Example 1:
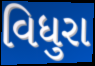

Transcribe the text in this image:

વિધુરા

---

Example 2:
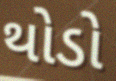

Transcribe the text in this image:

થોડો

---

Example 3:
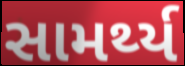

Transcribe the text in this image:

સામર્થ્ય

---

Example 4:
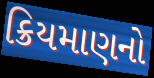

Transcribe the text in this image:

ક્રિયમાણનો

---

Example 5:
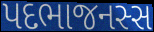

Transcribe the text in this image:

પદભાજનસ્સ